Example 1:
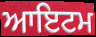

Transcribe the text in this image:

ਆਇਟਮ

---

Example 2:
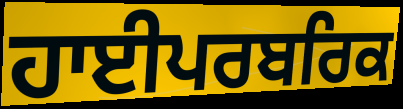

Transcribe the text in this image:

ਹਾਈਪਰਬਰਿਕ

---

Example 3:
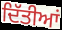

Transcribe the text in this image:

ਦਿੱਤੀਆਂ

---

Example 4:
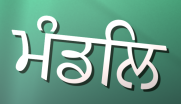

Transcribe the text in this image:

ਮੰਡਲਿ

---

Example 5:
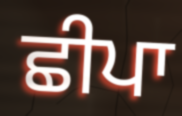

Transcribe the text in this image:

ਛੀਪਾ